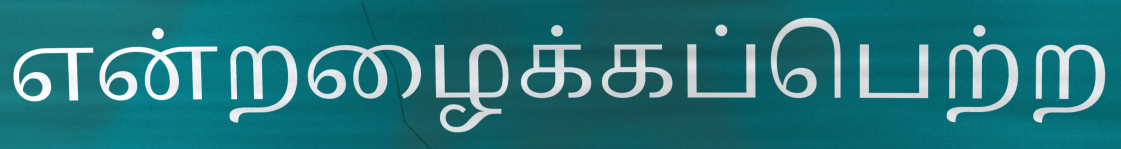
என்றழைக்கப்பெற்ற